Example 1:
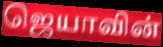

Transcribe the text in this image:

ஜெயாவின்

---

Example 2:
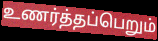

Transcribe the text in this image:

உணர்த்தப்பெறும்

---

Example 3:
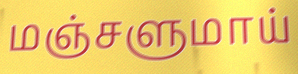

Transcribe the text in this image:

மஞ்சளுமாய்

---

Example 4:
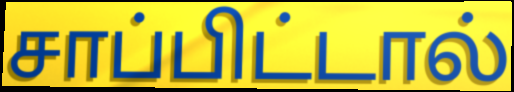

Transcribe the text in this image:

சாப்பிட்டால்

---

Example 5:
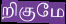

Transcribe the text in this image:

றிகுமே